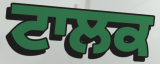
ਟਾਲਕ